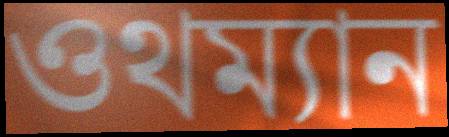
ওথম্যান